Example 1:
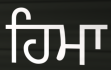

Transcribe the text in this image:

ਹਿਮਾ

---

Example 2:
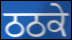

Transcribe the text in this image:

ਠਠਕੇ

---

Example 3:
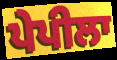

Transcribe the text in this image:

ਪੇਪੀਲਾ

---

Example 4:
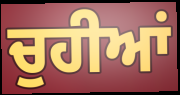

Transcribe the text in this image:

ਚੁਹੀਆਂ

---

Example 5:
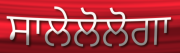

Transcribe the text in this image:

ਸਾਲੇਲੋਲੋਗਾ